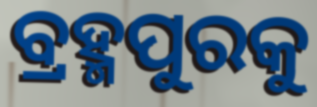
ବ୍ରହ୍ମପୁରକୁ